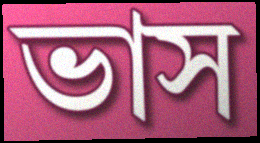
ভাস